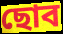
ছোব